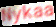
Nykaa